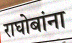
राघोबांना